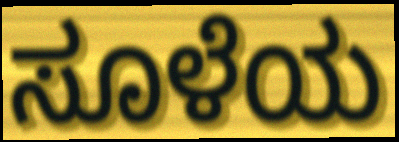
ಸೂಳೆಯ